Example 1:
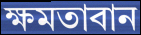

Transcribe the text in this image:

ক্ষমতাবান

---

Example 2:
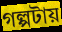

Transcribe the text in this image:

গল্পটায়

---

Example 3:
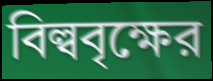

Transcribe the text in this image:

বিল্ববৃক্ষের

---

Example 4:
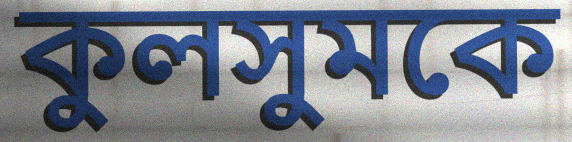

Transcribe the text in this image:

কুলসুমকে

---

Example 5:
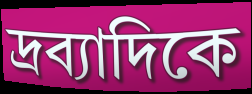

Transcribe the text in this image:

দ্রব্যাদিকে